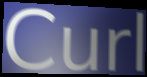
Curl